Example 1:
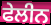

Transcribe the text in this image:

ਫੇਲੀਨ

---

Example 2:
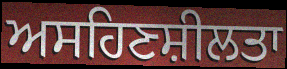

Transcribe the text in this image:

ਅਸਹਿਣਸ਼ੀਲਤਾ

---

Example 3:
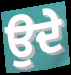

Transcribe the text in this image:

ਉਦੇ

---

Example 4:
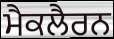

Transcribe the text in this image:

ਮੈਕਲੈਰਨ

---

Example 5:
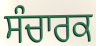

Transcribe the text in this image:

ਸੰਚਾਰਕ